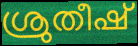
ശ്രുതീഷ്